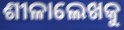
ଶୀଳାଲେଖକୁ